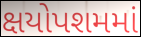
ક્ષયોપશમમાં